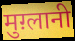
मुग़्लानी